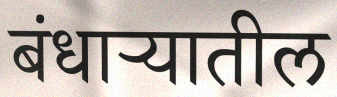
बंधाऱ्यातील